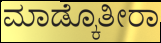
ಮಾಡ್ಕೊತೀರಾ